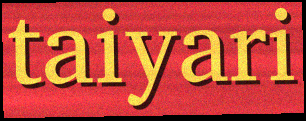
taiyari